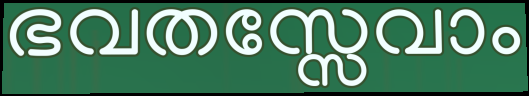
ഭവതസ്സേവാം